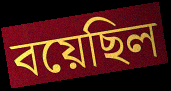
বয়েছিল